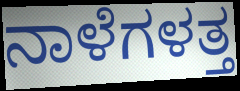
ನಾಳೆಗಳತ್ತ